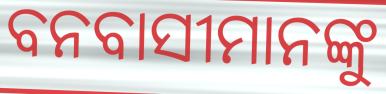
ବନବାସୀମାନଙ୍କୁ